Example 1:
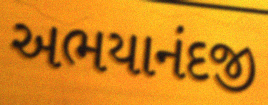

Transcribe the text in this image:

અભયાનંદજી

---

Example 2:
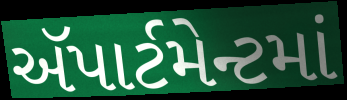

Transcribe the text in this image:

ઍપાર્ટમેન્ટમાં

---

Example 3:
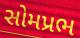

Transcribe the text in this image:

સોમપ્રભ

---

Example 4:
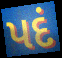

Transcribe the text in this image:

પદં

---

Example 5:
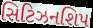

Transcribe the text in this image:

સિટિઝનશિપ